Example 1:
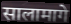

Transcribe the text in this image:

सालामागे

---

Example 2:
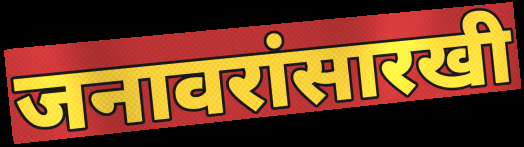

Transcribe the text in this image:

जनावरांसारखी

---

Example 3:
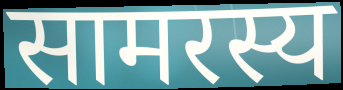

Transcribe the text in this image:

सामरस्य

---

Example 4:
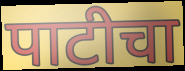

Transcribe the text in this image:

पाटीचा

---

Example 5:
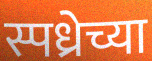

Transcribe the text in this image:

स्पध्रेच्या